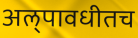
अल्पावधीतच